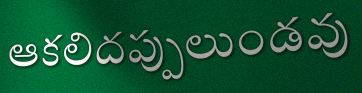
ఆకలిదప్పులుండవు